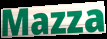
Mazza